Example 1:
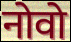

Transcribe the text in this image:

नोवो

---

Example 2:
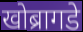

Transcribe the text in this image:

खोब्रागडे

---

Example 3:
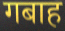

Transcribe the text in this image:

गबाह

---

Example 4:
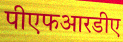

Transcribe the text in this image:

पीएफआरडीए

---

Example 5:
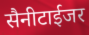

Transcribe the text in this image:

सैनीटाईजर